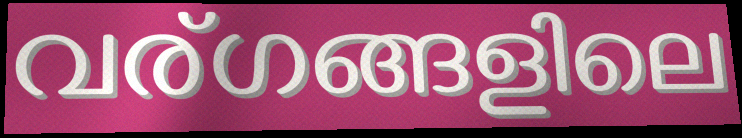
വര്ഗങ്ങളിലെ